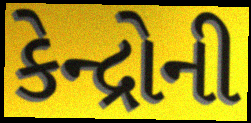
કેન્દ્રોની